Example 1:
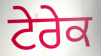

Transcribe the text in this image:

ਟੇਰੇਕ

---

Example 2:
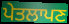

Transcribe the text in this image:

ਪੇਤਲਾਪਣ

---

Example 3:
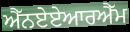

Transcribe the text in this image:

ਐੱਨਏਏਆਰਐੱਮ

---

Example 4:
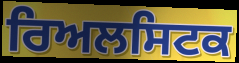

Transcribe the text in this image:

ਰਿਅਲਸਿਟਕ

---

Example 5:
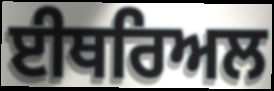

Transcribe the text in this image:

ਈਥਰਿਅਲ